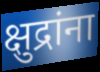
क्षुद्रांना